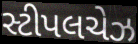
સ્ટીપલચેઝ